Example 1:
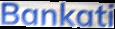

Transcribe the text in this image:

Bankati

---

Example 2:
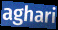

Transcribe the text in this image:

aghari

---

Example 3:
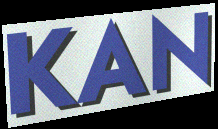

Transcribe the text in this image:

KAN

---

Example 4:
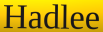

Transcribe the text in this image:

Hadlee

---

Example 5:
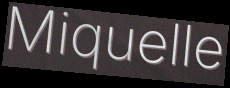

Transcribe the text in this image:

Miquelle